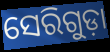
ସେରିଗୁଡ଼ା